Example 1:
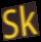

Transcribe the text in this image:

Sk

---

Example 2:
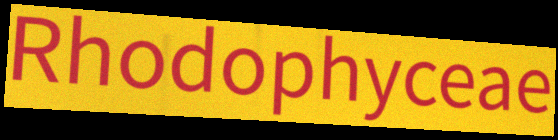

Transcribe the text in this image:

Rhodophyceae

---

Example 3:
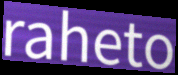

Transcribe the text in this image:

raheto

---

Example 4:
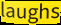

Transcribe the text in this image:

laughs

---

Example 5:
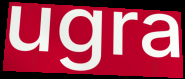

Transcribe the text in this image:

ugra